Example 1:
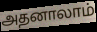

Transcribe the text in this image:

அதனாலாம்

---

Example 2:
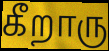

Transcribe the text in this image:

கீறாரு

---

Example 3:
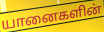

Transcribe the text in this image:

யானைகளின்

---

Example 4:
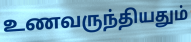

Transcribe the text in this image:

உணவருந்தியதும்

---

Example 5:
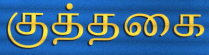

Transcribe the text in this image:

குத்தகை